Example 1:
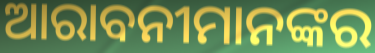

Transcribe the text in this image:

ଆରାବନୀମାନଙ୍କର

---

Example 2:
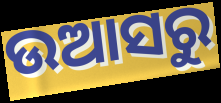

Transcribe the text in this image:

ଉଆସରୁ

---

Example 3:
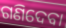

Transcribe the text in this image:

ଗଣିଦେବା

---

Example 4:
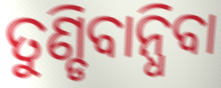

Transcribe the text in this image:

ତୁଣ୍ଡିବାନ୍ଧିବା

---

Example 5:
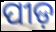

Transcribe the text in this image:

ପୀଡ଼